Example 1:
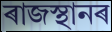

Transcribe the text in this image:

ৰাজস্থানৰ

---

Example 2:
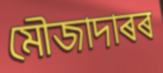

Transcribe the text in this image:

মৌজাদাৰৰ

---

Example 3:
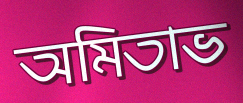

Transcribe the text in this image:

অমিতাভ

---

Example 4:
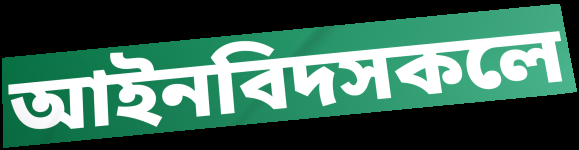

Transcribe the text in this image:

আইনবিদসকলে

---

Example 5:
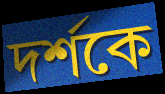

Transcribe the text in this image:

দৰ্শকে